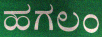
ಹಗಲಂ